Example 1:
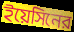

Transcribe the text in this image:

ইয়েসিনের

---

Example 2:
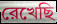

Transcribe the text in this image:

রেখেছি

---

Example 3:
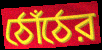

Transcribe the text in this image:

ঠোঁঠের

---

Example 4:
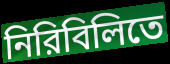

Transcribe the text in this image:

নিরিবিলিতে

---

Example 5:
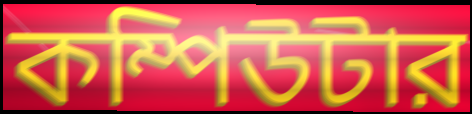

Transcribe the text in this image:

কম্পিউটার